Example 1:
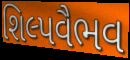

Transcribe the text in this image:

શિલ્પવૈભવ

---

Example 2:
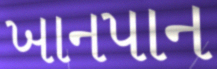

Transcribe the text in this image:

ખાનપાન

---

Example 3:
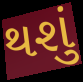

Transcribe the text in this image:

થશું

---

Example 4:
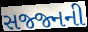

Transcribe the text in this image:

સજ્જ્નની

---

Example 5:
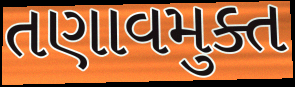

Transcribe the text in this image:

તણાવમુક્ત